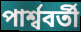
পাৰ্শ্ববৰ্তী